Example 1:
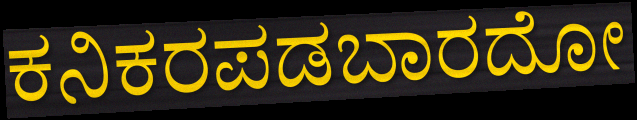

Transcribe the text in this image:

ಕನಿಕರಪಡಬಾರದೋ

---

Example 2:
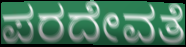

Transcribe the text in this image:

ಪರದೇವತೆ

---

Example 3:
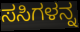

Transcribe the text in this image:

ಸಸಿಗಳನ್ನ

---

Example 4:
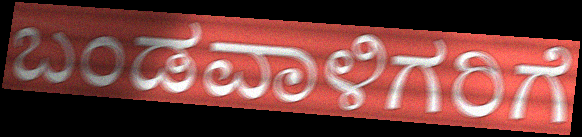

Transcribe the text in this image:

ಬಂಡವಾಳಿಗರಿಗೆ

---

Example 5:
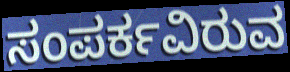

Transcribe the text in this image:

ಸಂಪರ್ಕವಿರುವ